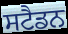
ਸਟੈਡਨ